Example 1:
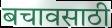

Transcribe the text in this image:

बचावसाठी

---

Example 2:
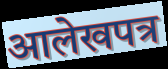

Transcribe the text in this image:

आलेखपत्र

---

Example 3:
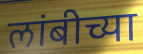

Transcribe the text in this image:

लांबीच्या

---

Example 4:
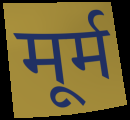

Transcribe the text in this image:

मूर्म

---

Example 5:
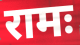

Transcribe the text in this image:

रामः